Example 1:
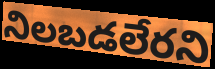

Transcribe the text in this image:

నిలబడలేరని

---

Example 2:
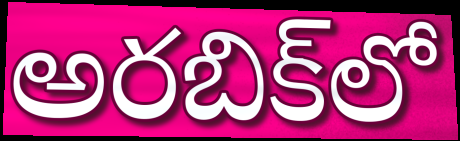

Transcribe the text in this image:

అరబిక్‌లో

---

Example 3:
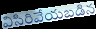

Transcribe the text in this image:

విసిరివేయబడిన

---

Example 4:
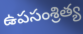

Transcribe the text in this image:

ఉపసంశ్రిత్య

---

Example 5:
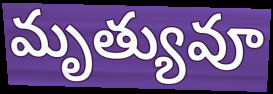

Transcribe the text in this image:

మృత్యువూ